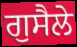
ਗੁਸੈਲੇ